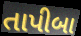
તાપીબા